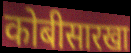
कोबीसारखा